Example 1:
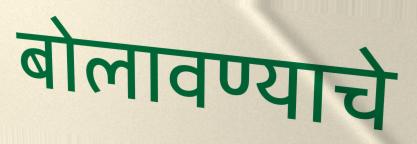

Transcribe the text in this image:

बोलावण्याचे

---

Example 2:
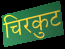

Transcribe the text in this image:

चिरकुट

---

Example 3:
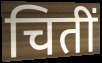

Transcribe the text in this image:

चितीं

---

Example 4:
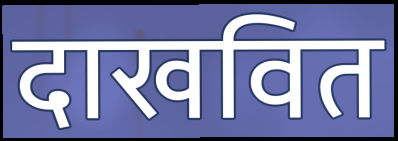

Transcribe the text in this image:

दाखवित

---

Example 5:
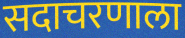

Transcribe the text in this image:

सदाचरणाला